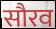
सौरव